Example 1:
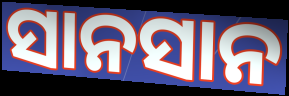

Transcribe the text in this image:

ସାନସାନ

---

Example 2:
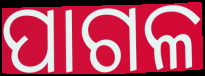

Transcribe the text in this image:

ପାଗଳ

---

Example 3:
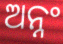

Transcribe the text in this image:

ଅନ୍ନଂ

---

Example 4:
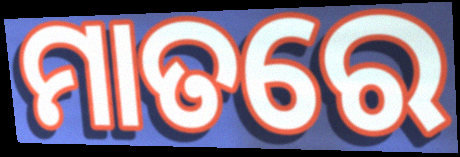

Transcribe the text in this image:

ମାତରେ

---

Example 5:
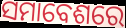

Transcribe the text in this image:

ସମାବେଶରେ